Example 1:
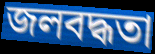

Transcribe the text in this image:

জলবদ্ধতা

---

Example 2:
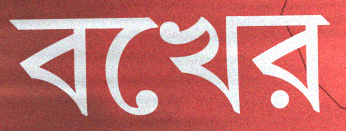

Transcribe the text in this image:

বখের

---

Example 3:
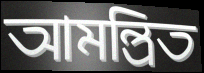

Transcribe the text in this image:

আমন্ত্রিত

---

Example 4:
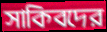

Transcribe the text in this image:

সাকিবদের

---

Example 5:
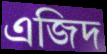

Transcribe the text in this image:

এজিদ